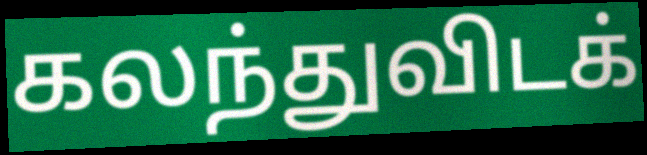
கலந்துவிடக்